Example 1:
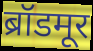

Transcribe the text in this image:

ब्रॉडमूर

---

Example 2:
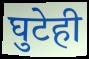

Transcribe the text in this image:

घुटेही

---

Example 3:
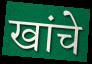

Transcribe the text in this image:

खांचे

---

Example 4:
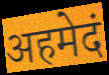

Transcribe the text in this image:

अहमेदं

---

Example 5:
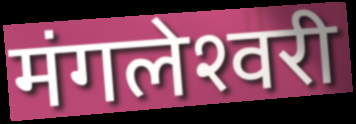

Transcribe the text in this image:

मंगलेश्वरी